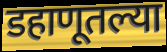
डहाणूतल्या